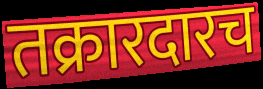
तक्रारदारच